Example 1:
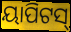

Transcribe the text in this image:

ୟାପିଟସ୍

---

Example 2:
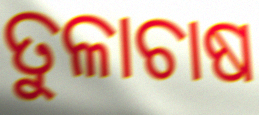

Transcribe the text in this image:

ତୁଳାଚାଷ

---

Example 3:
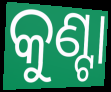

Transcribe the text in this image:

କୁଣ୍ଟା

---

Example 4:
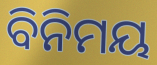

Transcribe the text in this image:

ବିନିମୟ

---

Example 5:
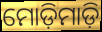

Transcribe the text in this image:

ମୋଡ଼ିମାଡ଼ି